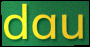
dau